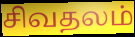
சிவதலம்